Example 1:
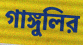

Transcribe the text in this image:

গাঙ্গুলির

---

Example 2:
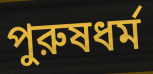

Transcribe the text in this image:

পুরুষধর্ম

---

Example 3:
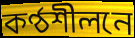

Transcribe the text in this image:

কণ্ঠশীলনে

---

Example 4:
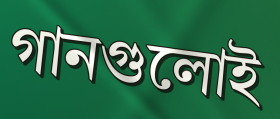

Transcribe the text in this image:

গানগুলোই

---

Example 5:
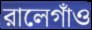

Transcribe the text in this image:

রালেগাঁও